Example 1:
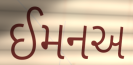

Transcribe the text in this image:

ઈમનઅ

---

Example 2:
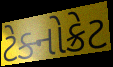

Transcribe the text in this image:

ટેક્નોક્રેટ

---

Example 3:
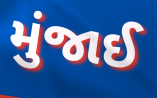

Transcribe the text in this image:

મુંજાઈ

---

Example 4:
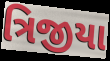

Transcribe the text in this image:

ત્રિજીયા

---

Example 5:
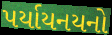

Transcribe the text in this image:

પર્યાયનયનો